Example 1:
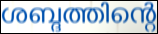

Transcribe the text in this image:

ശബ്ദത്തിന്റെ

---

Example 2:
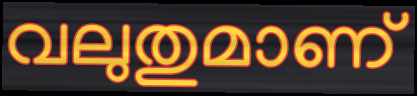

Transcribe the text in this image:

വലുതുമാണ്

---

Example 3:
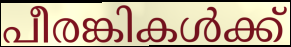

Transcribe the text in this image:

പീരങ്കികൾക്ക്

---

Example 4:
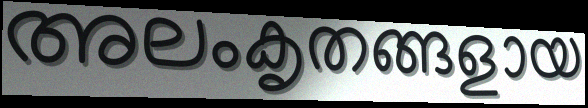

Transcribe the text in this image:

അലംകൃതങ്ങളായ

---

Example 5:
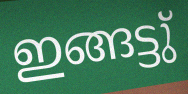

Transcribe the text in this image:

ഇങ്ങട്ടു്